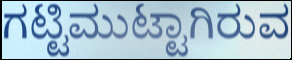
ಗಟ್ಟಿಮುಟ್ಟಾಗಿರುವ